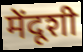
मेंदूशी